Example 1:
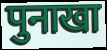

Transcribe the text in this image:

पुनाखा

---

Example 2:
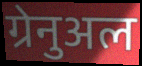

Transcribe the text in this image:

ग्रेनुअल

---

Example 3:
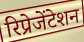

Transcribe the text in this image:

रिप्रेजेंटेशन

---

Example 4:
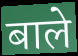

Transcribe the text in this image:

बाले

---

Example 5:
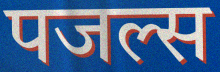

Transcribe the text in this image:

पजल्स